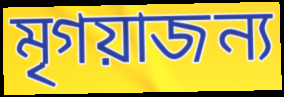
মৃগয়াজন্য